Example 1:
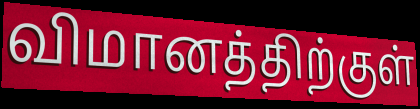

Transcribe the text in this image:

விமானத்திற்குள்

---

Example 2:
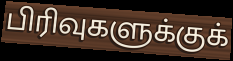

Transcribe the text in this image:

பிரிவுகளுக்குக்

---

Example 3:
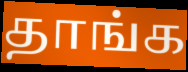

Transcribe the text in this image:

தாங்க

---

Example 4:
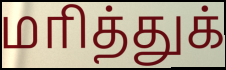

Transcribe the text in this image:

மரித்துக்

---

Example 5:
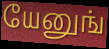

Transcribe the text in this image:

யேனுங்